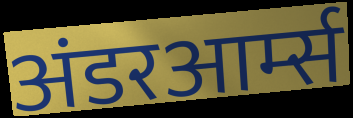
अंडरआर्म्‍स